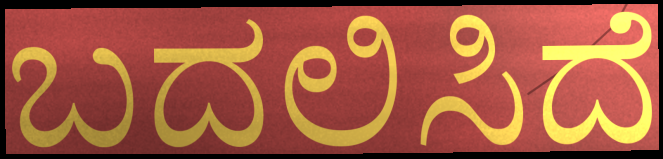
ಬದಲಿಸಿದೆ